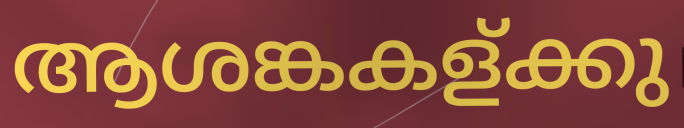
ആശങ്കകള്ക്കു